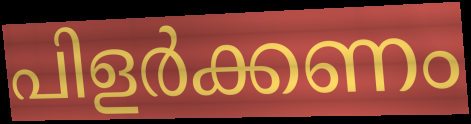
പിളർക്കണം